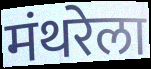
मंथरेला